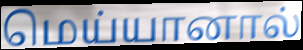
மெய்யானால்